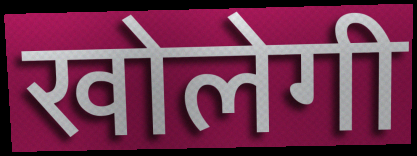
खोलेगी